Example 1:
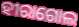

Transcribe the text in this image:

ହୀରାଗୋଲ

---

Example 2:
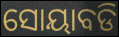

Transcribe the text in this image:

ସୋୟାବଡି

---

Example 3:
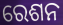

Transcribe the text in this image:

ରେଶନ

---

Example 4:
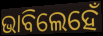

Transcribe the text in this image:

ଭାବିଲେହେଁ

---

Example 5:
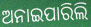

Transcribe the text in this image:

ଅନାଇପାରିଲି